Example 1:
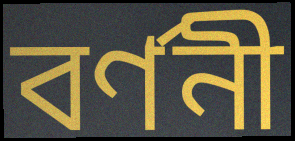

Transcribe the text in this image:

বৰ্ণনী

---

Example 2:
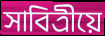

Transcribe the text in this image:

সাবিত্ৰীয়ে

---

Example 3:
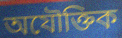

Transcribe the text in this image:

অযৌক্তিক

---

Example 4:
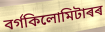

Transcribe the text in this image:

বৰ্গকিলোমিটাৰৰ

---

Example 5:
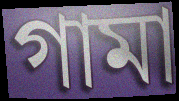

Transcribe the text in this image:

গামা